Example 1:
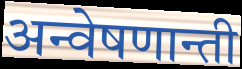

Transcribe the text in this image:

अन्वेषणान्ती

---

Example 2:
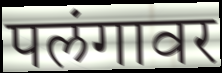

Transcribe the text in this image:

पलंगावर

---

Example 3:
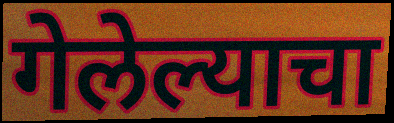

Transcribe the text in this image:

गेलेल्याचा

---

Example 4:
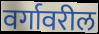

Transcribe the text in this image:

वर्गावरील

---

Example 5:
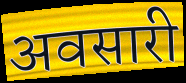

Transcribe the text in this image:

अवसारी